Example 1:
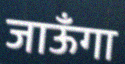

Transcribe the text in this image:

जाऊँगा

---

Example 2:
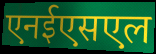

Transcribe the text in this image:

एनईएसएल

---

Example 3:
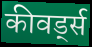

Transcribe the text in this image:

कीवर्ड्स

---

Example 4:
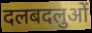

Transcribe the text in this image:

दलबदलुओं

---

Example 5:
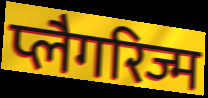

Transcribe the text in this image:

प्लैगरिज्म